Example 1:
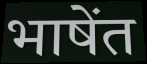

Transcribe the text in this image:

भाषेंत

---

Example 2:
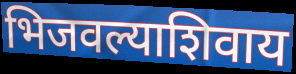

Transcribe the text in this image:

भिजवल्याशिवाय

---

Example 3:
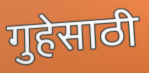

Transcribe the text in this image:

गुहेसाठी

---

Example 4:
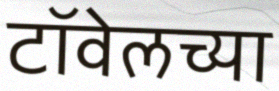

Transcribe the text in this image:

टॉवेलच्या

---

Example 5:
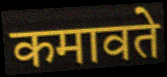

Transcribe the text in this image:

कमावते